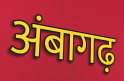
अंबागढ़